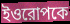
ইওরোপকে